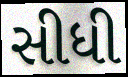
સીધી